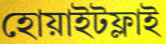
হোয়াইটফ্লাই